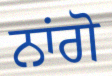
ਨਾਂਗੋ